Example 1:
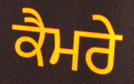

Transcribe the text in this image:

ਕੈਮਰੇ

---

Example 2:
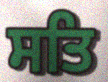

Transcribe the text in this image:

ਸਤਿ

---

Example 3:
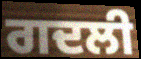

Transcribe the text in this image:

ਗਦਲੀ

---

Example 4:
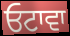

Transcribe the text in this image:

ਓਟਾਵਾ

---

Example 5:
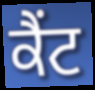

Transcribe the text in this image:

ਕੈਂਟ